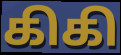
கிகி